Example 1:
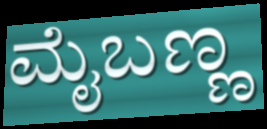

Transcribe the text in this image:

ಮೈಬಣ್ಣ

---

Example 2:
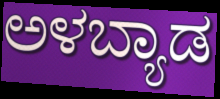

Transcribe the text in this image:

ಅಳಬ್ಯಾಡ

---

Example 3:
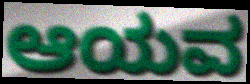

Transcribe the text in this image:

ಆಯವ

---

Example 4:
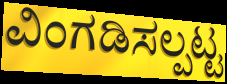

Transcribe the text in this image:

ವಿಂಗಡಿಸಲ್ಪಟ್ಟ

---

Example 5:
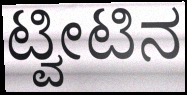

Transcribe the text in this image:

ಟ್ವೀಟಿನ